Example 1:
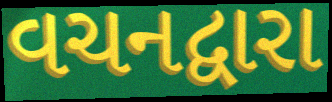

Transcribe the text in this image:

વચનદ્વારા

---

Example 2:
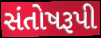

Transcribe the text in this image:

સંતોષરૂપી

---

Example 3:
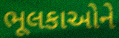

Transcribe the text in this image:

ભૂલકાઓને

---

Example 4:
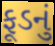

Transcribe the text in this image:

ફૂડનું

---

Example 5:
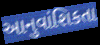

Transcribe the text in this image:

આનુવાંશિકતા